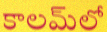
కాలమ్‍లో